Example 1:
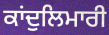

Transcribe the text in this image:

ਕਾਂਦੁਲਿਮਾਰੀ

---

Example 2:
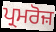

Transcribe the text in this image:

ਪ੍ਰਮਰੋਜ਼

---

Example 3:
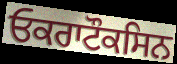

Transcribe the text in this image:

ਓਕਰਾਟੌਕਸਿਨ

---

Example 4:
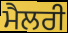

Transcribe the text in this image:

ਮੈਲਰੀ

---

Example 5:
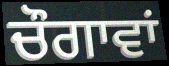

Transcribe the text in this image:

ਚੌਗਾਵਾਂ